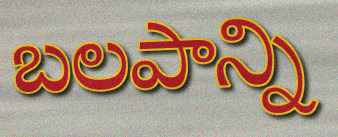
బలపాన్ని